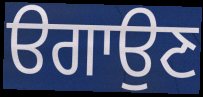
ੳਗਾਉਣ